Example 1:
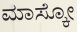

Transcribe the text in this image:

ಮಾಸ್ಕೋ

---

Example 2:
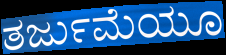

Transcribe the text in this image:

ತರ್ಜುಮೆಯೂ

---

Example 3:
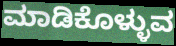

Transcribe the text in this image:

ಮಾಡಿಕೊಳ್ಳುವ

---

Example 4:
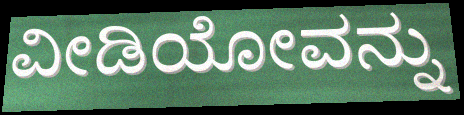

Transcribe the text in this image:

ವೀಡಿಯೋವನ್ನು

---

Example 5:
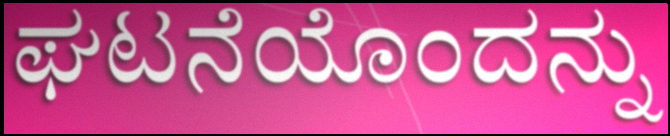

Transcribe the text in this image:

ಘಟನೆಯೊಂದನ್ನು